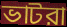
ভাটরা